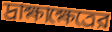
দ্রাক্ষাক্ষেত্রের